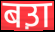
बउ़ा